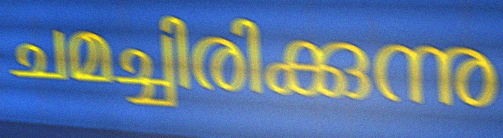
ചമച്ചിരിക്കുന്നു